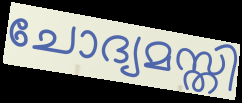
ചോദ്യമസ്തി